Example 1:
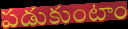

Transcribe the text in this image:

పడుకుంటాం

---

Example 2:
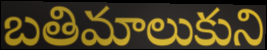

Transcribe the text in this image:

బతిమాలుకుని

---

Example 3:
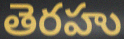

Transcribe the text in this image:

తెరహు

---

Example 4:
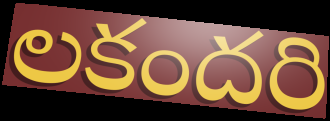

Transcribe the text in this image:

లకందరి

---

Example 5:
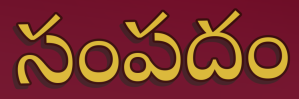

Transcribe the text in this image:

సంపదం